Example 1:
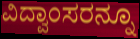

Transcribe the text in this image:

ವಿದ್ವಾಂಸರನ್ನೂ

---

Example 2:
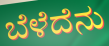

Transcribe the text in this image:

ಬೆಳೆದೆನು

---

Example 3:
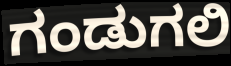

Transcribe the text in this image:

ಗಂಡುಗಲಿ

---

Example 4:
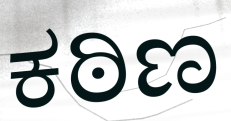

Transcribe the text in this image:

ಕಠಿಣ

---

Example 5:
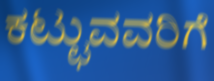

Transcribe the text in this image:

ಕಟ್ಟುವವರಿಗೆ